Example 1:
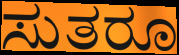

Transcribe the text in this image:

ಸುತರೂ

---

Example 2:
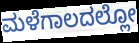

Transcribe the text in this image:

ಮಳೆಗಾಲದಲ್ಲೋ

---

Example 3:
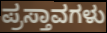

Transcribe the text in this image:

ಪ್ರಸ್ತಾವಗಳು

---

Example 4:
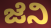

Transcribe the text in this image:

ಜೆನಿ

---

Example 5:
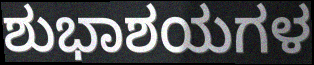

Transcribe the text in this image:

ಶುಭಾಶಯಗಳ